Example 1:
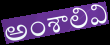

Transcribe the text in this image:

అంశాలివి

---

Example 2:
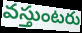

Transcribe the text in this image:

వస్తుంటరు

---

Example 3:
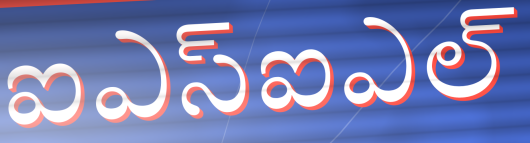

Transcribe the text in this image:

ఐఎస్ఐఎల్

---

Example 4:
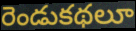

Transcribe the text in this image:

రెండుకథలూ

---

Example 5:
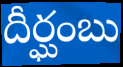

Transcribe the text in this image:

దీర్ఘంబు